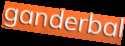
ganderbal